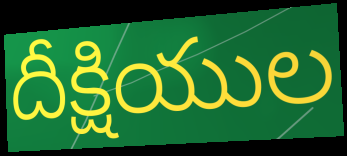
దీక్షియుల